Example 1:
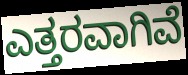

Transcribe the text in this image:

ಎತ್ತರವಾಗಿವೆ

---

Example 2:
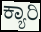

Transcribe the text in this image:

ಕ್ಯಾರಿ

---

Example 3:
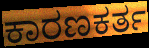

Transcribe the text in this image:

ಕಾರಣಕರ್ತ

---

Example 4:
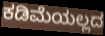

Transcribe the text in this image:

ಕಡಿಮೆಯಲ್ಲದ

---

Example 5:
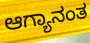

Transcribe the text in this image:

ಆಗ್ಯಾನಂತ